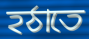
হঠাতে